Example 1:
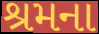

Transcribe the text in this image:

શ્રમના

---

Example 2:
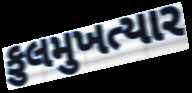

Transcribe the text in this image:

કુલમુખત્યાર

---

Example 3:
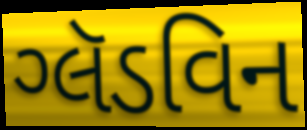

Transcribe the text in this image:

ગ્લૅડવિન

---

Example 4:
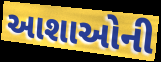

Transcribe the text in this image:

આશાઓની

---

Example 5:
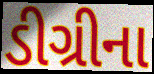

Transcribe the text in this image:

ડીગ્રીના